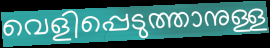
വെളിപ്പെടുത്താനുള്ള